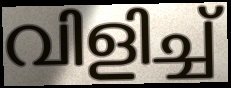
വിളിച്ച്